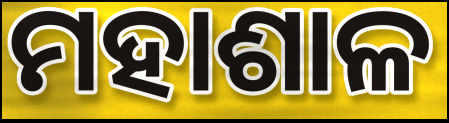
ମହାଶାଳ